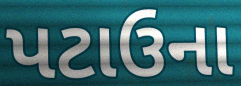
પટાઉના